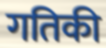
गतिकी